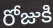
రోజుకి